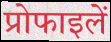
प्रोफाइलें